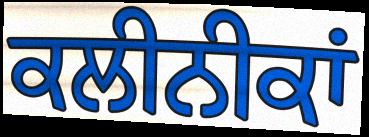
ਕਲੀਨੀਕਾਂ